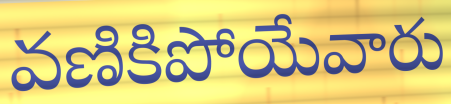
వణికిపోయేవారు